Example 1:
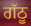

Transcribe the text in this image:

ਗੱਠੂ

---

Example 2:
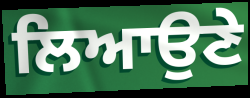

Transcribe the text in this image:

ਲਿਆਉਣੇ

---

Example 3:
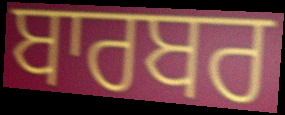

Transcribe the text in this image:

ਬਾਰਬਰ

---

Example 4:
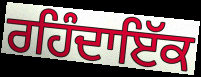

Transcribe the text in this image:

ਰਹਿੰਦਾਇੱਕ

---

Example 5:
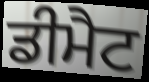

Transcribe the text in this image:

ਡੀਮੈਟ